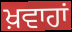
ਖ਼ਵਾਹਾਂ